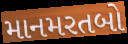
માનમરતબો